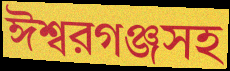
ঈশ্বরগঞ্জসহ